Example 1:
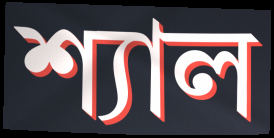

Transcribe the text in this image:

শ্যাল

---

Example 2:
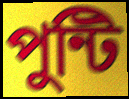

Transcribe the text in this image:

পুন্টি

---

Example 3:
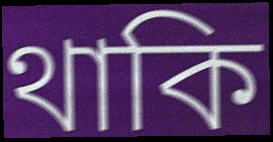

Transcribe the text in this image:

থাকি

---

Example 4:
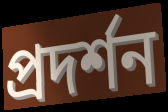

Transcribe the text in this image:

প্রদর্শন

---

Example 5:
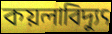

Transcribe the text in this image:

কয়লাবিদ্যুৎ